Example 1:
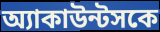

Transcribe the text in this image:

অ্যাকাউন্টসকে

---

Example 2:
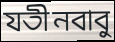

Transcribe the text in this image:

যতীনবাবু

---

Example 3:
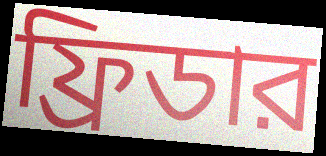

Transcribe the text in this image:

ফ্রিডার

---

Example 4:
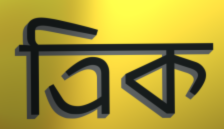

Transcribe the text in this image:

ত্রিক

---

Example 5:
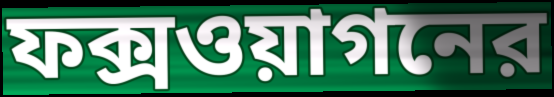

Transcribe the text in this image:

ফক্সওয়াগনের